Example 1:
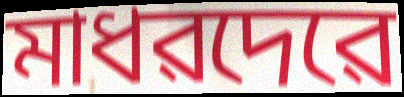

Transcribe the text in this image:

মাধৱদেৱে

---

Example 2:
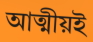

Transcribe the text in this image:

আত্মীয়ই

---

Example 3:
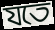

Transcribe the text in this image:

যতে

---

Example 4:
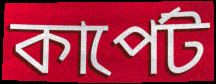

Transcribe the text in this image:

কাৰ্পেট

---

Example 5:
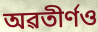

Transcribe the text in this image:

অৱতীৰ্ণও